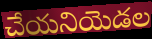
చేయనియెడల